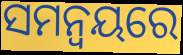
ସମନ୍ବୟରେ